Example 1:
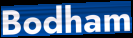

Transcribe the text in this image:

Bodham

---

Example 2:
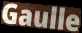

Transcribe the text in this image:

Gaulle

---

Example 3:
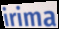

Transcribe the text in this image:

irima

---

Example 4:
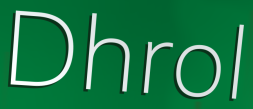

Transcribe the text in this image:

Dhrol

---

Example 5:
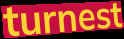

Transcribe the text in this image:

turnest